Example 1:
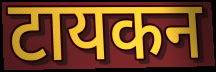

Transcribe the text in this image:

टायकन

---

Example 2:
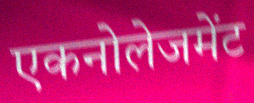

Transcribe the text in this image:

एकनोलेजमेंट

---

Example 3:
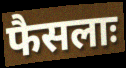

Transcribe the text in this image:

फैसलाः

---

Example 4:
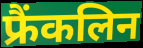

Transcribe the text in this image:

फ्रैंकलिन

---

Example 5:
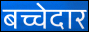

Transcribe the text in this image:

बच्चेदार